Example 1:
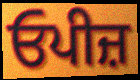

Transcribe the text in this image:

ਓਪੀਜ਼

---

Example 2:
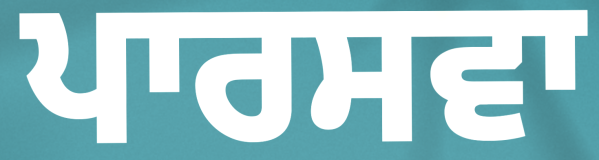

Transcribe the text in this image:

ਪਾਰਸਵਾ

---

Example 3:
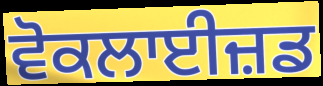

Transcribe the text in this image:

ਵੋਕਲਾਈਜ਼ਡ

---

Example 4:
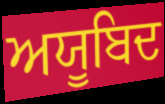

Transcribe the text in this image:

ਅਯੂਬਿਦ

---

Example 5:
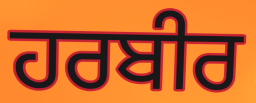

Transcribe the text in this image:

ਹਰਬੀਰ